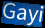
Gayi